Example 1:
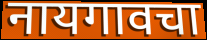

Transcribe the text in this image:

नायगावचा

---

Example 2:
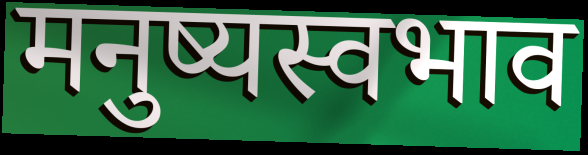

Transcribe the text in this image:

मनुष्यस्वभाव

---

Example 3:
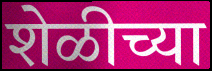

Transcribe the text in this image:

शेळीच्या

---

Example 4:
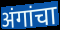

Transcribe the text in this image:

अंगांचा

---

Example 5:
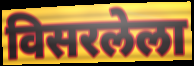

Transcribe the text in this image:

विसरलेला